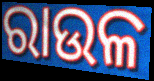
ରାଉଳ